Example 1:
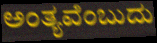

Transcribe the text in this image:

ಅಂತ್ಯವೆಂಬುದು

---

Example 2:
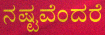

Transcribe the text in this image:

ನಷ್ಟವೆಂದರೆ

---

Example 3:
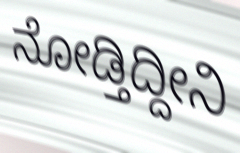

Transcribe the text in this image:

ನೋಡ್ತಿದ್ದೀನಿ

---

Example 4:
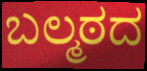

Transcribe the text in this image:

ಬಲ್ಮಠದ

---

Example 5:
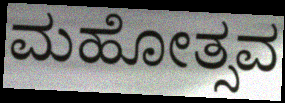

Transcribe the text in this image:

ಮಹೋತ್ಸವ